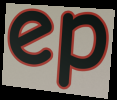
ep